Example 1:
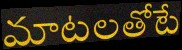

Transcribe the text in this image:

మాటలతోటే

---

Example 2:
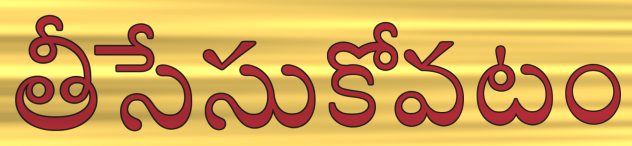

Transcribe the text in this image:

తీసేసుకోవటం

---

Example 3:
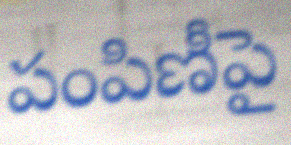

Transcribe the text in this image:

పంపిణీపై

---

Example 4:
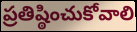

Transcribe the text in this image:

ప్రతిష్ఠించుకోవాలి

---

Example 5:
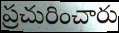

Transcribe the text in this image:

ప్రచురించారు